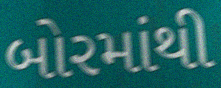
બોરમાંથી